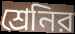
শ্রেনির